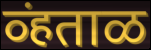
व्हंताळ